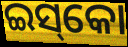
ଇସ୍‌କୋ